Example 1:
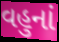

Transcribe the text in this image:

વહુનાં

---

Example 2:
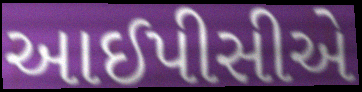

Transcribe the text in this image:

આઈપીસીએ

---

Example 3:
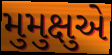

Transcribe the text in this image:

મુમુક્ષુએ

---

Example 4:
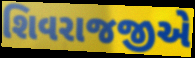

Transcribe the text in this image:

શિવરાજજીએ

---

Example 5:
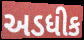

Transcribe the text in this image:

અડધીક